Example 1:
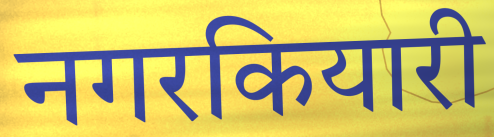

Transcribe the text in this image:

नगरकियारी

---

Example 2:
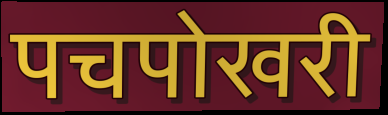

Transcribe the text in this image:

पचपोखरी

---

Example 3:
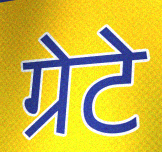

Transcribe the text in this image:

ग्रेटे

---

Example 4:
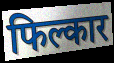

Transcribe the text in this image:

फिल्कार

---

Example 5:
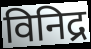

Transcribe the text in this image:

विनिद्र